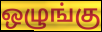
ஒழுங்கு